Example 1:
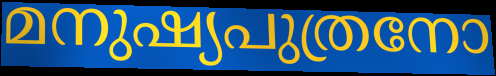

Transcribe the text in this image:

മനുഷ്യപുത്രനോ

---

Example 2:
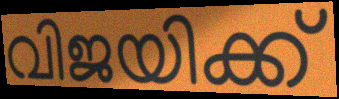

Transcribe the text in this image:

വിജയിക്ക്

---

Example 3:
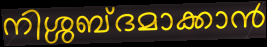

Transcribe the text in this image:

നിശ്ശബ്ദമാക്കാൻ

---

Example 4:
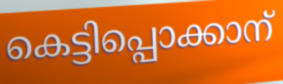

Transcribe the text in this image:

കെട്ടിപ്പൊക്കാന്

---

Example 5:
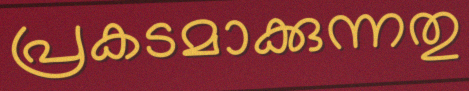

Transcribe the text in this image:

പ്രകടമാക്കുന്നതു